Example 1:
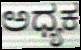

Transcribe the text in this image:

ಅಧ್ಯಕ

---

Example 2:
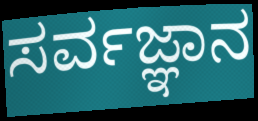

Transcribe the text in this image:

ಸರ್ವಜ್ಞಾನ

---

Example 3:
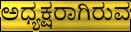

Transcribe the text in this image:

ಅಧ್ಯಕ್ಷರಾಗಿರುವ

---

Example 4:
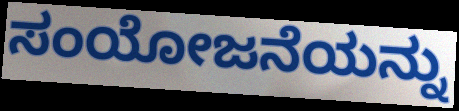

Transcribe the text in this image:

ಸಂಯೋಜನೆಯನ್ನು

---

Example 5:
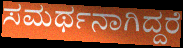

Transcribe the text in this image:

ಸಮರ್ಥನಾಗಿದ್ದರೆ